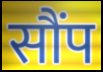
सौंप